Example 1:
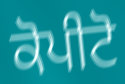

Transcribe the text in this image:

ਕੋਪੀਟੋ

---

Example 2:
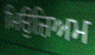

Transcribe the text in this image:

ਮਿਉਜ਼ਿਅਮ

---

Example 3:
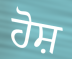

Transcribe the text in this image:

ਹੋਸ਼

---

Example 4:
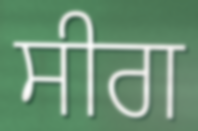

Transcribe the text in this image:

ਸੀਗ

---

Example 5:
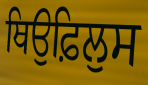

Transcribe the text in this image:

ਥਿਉਫ਼ਿਲੁਸ